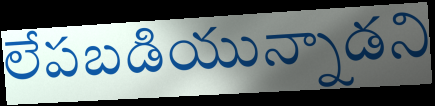
లేపబడియున్నాడని